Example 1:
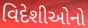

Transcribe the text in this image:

વિદેશીઓનો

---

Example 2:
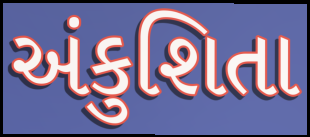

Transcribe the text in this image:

અંકુશિતા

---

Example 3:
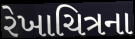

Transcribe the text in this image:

રેખાચિત્રના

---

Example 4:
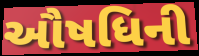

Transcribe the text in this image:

ઔષધિની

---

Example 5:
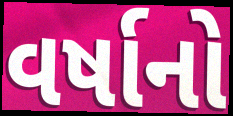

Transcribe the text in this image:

વર્ષાનો